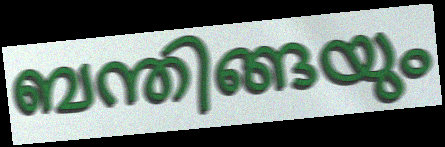
ബന്തിങ്ങയും